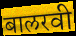
बालरवी